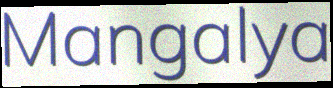
Mangalya